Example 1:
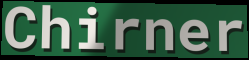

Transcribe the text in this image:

Chirner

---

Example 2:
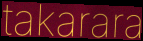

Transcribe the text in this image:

takarara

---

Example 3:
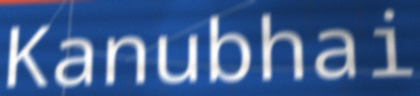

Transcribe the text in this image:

Kanubhai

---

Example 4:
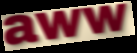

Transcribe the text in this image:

aww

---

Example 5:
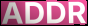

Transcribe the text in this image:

ADDR